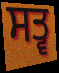
ਸਤ੍ਵ